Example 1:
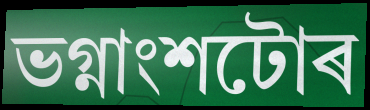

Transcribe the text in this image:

ভগ্নাংশটোৰ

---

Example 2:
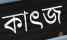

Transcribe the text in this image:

কাৎজ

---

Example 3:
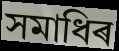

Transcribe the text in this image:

সমাধিৰ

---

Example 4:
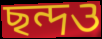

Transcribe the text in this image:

ছন্দও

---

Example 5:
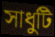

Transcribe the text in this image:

সাধুটি